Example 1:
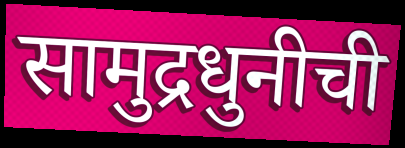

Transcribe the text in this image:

सामुद्रधुनीची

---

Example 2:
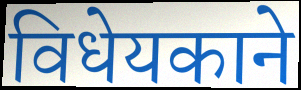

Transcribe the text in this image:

विधेयकाने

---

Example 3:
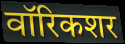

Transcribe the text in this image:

वॉरिकशर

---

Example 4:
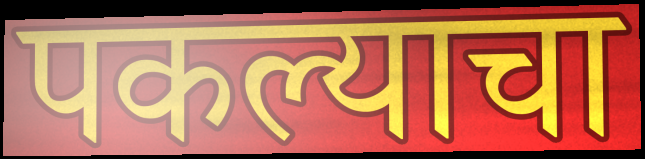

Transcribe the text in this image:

पकल्याचा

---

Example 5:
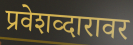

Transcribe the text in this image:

प्रवेशव्दारावर